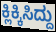
ಕ್ಲಿಕ್ಕಿಸಿದ್ದು